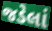
જડેલાં